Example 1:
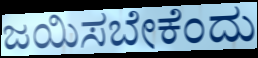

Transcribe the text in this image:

ಜಯಿಸಬೇಕೆಂದು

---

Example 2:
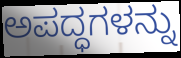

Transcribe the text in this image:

ಅಪದ್ಧಗಳನ್ನು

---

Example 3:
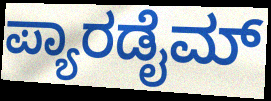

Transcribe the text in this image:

ಪ್ಯಾರಡೈಮ್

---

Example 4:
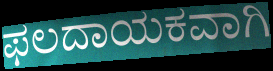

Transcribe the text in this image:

ಫಲದಾಯಕವಾಗಿ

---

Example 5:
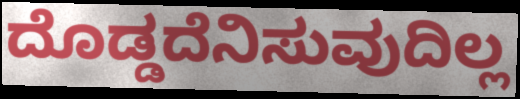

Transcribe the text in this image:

ದೊಡ್ಡದೆನಿಸುವುದಿಲ್ಲ